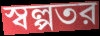
স্বল্পতর